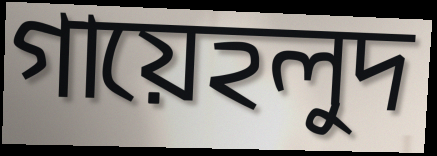
গায়েহলুদ